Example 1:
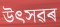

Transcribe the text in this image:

উৎসৱৰ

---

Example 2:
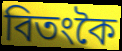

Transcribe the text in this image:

বিতংকৈ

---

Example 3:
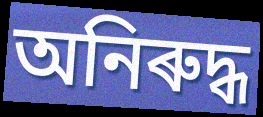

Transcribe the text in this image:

অনিৰুদ্ধ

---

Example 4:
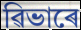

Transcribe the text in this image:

ৱিভাৰে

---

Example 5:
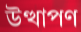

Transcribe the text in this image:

উত্থাপণ